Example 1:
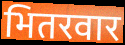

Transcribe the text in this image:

भितरवार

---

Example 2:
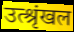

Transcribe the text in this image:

उत्श्रृंखल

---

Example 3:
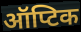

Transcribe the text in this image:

ऑप्टिक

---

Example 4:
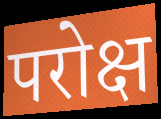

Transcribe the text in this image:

परोक्ष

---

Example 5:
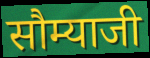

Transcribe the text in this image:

सौम्याजी